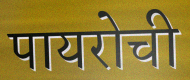
पायरोची